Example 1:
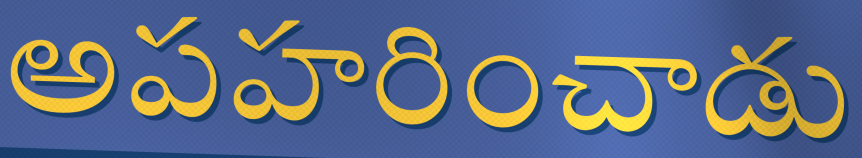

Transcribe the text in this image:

అపహరించాడు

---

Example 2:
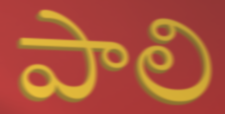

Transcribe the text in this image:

పాలి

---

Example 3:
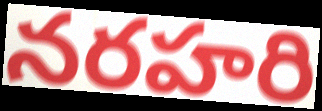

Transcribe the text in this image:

నరహరి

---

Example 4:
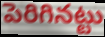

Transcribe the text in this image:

పెరిగినట్టు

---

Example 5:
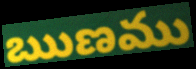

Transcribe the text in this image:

ఋణము